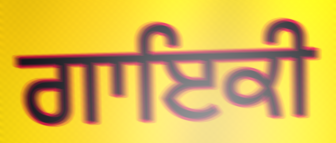
ਗਾਇਕੀ